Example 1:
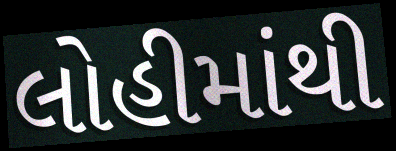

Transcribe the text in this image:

લોહીમાંથી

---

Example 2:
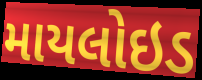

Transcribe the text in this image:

માયલોઇડ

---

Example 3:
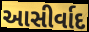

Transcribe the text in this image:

આસીર્વાદ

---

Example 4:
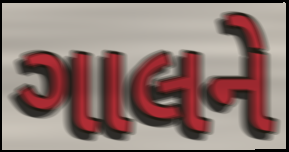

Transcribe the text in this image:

ગાલને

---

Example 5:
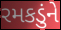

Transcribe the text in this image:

રમકડુંને